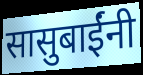
सासुबाईंनी